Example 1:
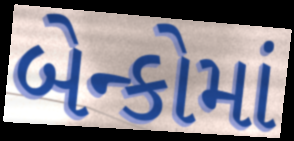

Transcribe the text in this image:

બેન્કોમાં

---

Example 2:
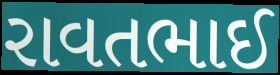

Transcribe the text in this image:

રાવતભાઈ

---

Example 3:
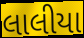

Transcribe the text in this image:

લાલીયા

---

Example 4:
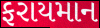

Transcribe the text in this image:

ફરાયમાન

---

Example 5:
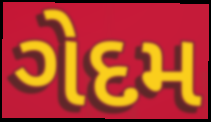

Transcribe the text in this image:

ગેદમ